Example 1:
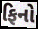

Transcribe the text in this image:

ફિનો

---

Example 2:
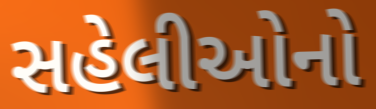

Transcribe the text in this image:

સહેલીઓનો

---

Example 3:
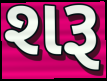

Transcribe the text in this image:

શરૂ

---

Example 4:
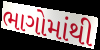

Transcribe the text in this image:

ભાગોમાંથી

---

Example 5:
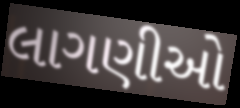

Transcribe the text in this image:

લાગણીઓ